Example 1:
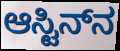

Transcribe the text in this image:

ಆಸ್ಟಿನ್‌ನ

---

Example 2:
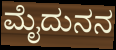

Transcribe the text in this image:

ಮೈದುನನ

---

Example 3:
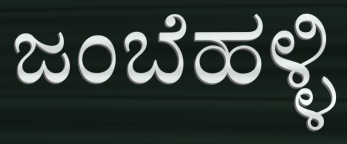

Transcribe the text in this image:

ಜಂಬೆಹಳ್ಳಿ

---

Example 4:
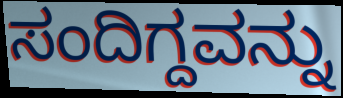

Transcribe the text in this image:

ಸಂದಿಗ್ದವನ್ನು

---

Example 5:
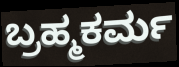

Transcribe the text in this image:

ಬ್ರಹ್ಮಕರ್ಮ